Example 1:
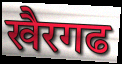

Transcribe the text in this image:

खैरगढ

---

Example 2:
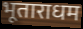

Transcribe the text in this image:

भूताराधम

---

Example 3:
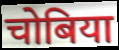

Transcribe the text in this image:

चोबिया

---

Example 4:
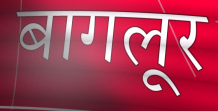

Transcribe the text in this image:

बागलूर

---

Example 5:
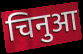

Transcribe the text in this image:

चिनुआ